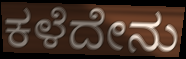
ಕಳೆದೇನು